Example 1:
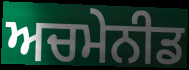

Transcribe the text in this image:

ਅਚਮੇਨੀਡ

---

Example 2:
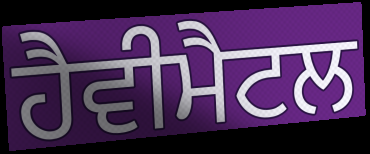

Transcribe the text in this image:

ਹੈਵੀਮੈਟਲ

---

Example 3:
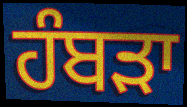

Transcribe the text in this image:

ਹੰਬੜਾ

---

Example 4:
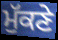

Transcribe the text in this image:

ਮੁੱਕਣੇ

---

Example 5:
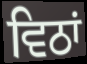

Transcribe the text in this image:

ਵਿਠਾਂ